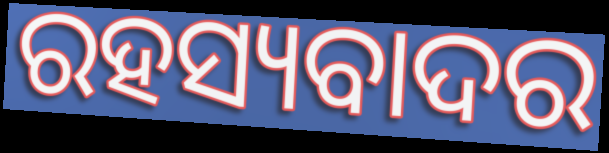
ରହସ୍ୟବାଦର